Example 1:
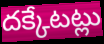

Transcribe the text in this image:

దక్కేటట్లు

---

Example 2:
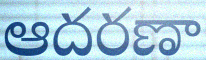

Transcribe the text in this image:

ఆదరణా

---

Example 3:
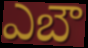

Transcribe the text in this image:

ఎబౌ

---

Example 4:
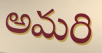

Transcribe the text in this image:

అమరి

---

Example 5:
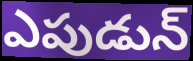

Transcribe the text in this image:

ఎపుడున్